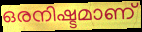
ഒരനിഷ്ടമാണ്